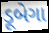
ડૂબેગા